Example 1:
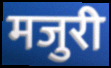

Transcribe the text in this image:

मजुरी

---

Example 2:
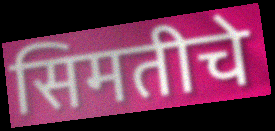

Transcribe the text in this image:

सिमतीचे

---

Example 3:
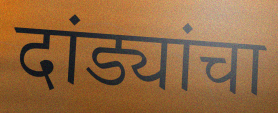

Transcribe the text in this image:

दांड्यांचा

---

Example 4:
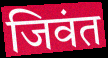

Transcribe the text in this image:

जिवंत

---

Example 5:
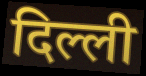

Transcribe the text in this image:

दिल्‍ली